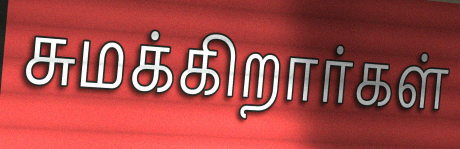
சுமக்கிறார்கள்